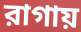
রাগায়